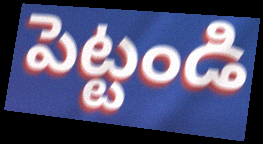
పెట్టండి